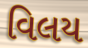
વિલય